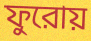
ফুরোয়